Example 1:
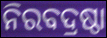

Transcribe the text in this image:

ନିରବଦ୍ରଷ୍ଠା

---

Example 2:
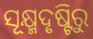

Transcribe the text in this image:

ସୂକ୍ଷ୍ମଦୃଷ୍ଟିରୁ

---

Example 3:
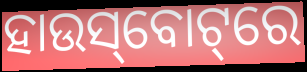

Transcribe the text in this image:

ହାଉସ୍‌ବୋଟ୍‌ରେ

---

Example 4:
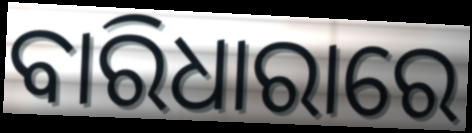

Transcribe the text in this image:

ବାରିଧାରାରେ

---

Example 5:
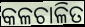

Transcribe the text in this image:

କଳଚାଳିତ